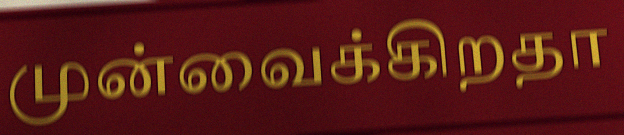
முன்வைக்கிறதா